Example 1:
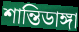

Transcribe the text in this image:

শান্তিডাঙ্গা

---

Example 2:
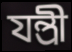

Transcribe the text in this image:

যন্ত্রী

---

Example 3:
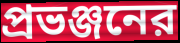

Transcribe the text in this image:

প্রভঞ্জনের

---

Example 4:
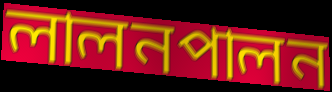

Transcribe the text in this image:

লালনপালন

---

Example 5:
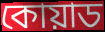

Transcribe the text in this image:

কোয়াড